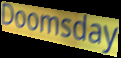
Doomsday